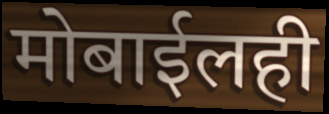
मोबाईलही